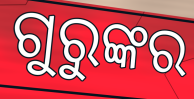
ଗୁରୁଙ୍କର